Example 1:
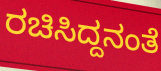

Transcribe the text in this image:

ರಚಿಸಿದ್ದನಂತೆ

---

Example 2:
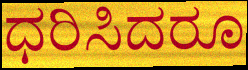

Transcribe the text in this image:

ಧರಿಸಿದರೂ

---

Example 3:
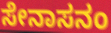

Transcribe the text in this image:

ಸೇನಾಸನಂ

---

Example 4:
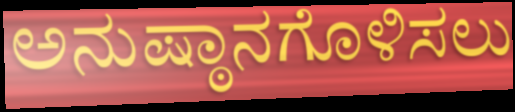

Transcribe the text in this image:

ಅನುಷ್ಠಾನಗೊಳಿಸಲು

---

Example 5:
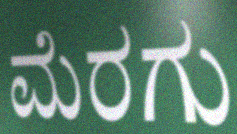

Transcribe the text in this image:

ಮೆರಗು